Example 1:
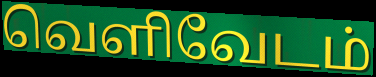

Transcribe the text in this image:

வெளிவேடம்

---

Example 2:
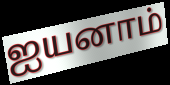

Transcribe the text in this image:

ஐயனாம்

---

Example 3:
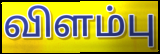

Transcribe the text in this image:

விளம்பு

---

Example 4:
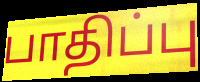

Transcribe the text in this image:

பாதிப்பு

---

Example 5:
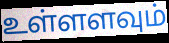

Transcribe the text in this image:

உள்ளளவும்